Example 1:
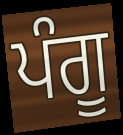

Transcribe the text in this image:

ਪੰਗੂ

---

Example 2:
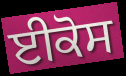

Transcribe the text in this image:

ਈਕੋਸ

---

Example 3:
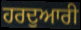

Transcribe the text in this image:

ਹਰਦੁਆਰੀ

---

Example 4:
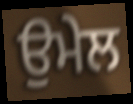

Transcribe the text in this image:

ਉਮੇਲ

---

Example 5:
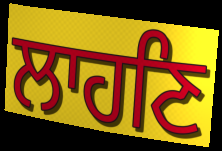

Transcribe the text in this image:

ਲਾਹਣਿ